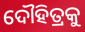
ଦୌହିତ୍ରକୁ